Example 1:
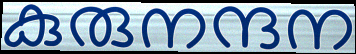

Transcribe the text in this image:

കുരുനന്ദന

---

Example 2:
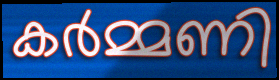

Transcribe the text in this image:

കർമ്മണി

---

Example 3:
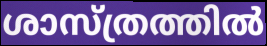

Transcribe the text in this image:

ശാസ്ത്രത്തിൽ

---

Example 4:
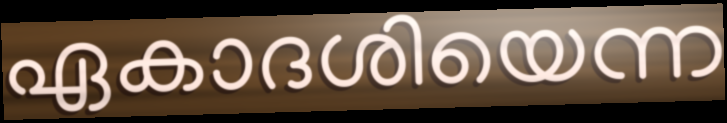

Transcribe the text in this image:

ഏകാദശിയെന്ന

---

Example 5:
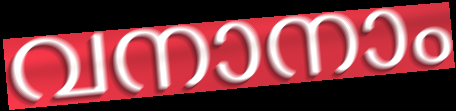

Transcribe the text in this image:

വനാനാം